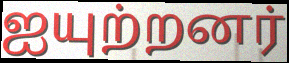
ஐயுற்றனர்